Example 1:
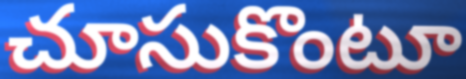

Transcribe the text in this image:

చూసుకొంటూ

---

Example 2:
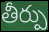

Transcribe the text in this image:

తీర్పు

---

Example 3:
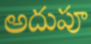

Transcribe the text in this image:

అదుపూ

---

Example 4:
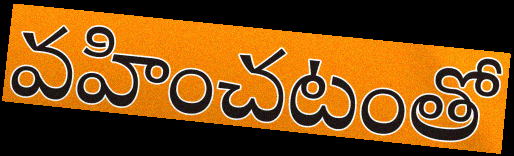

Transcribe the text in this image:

వహించటంతో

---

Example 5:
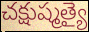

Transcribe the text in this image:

చక్షుష్మత్యై